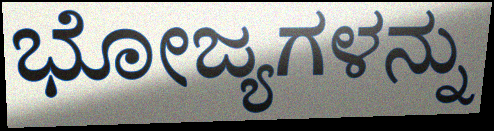
ಭೋಜ್ಯಗಳನ್ನು